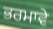
ਭਰਮਾਵੇ